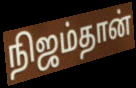
நிஜம்தான்